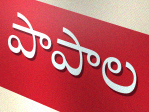
పాపాల